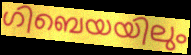
ഗിബെയയിലും